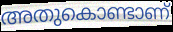
അതുകൊണ്ടാണ്